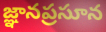
జ్ఞానప్రసూన